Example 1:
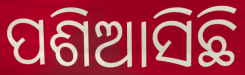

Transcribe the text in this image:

ପଶିଆସିଛି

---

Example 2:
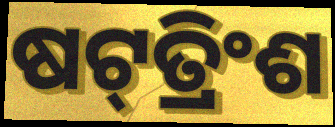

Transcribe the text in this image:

ଷଟ୍‌ତ୍ରିଂଶ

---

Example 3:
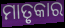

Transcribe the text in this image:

ମାତୃକାର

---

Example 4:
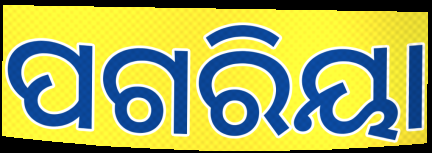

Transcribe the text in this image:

ପଗରିୟା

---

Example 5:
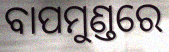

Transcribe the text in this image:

ବାପମୁଣ୍ଡରେ